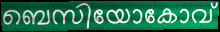
ബെസിയോകോവ്